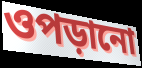
ওপড়ানো